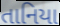
તાનિયા